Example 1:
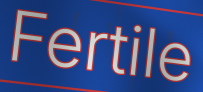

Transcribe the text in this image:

Fertile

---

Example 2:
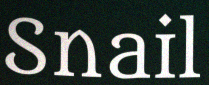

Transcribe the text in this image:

Snail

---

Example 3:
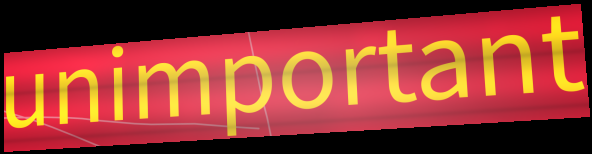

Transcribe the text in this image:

unimportant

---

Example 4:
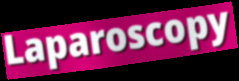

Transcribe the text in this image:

Laparoscopy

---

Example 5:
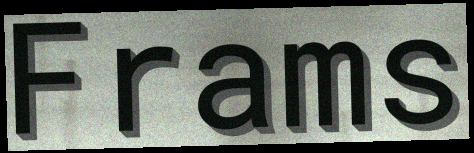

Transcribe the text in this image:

Frams